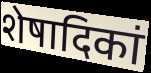
शेषादिकां